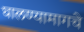
घालण्यामागचे